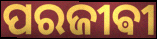
ପରଜୀଵୀ